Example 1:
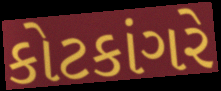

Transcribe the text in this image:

કોટકાંગરે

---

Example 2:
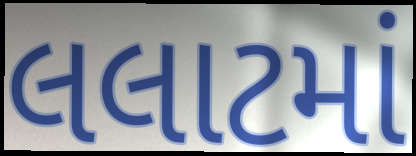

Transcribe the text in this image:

લલાટમાં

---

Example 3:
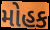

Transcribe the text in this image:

મોહક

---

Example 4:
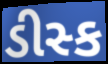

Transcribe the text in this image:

ડીસ્ક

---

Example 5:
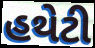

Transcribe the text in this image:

હથેટી